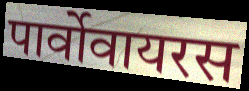
पार्वोवायरस